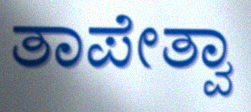
ತಾಪೇತ್ವಾ